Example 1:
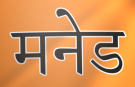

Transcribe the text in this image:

मनेड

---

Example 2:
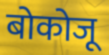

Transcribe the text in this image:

बोकोजू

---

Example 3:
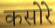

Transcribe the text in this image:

कसोरे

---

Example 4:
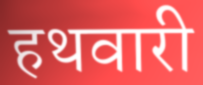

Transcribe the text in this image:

हथवारी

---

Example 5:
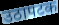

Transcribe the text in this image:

उठापटक